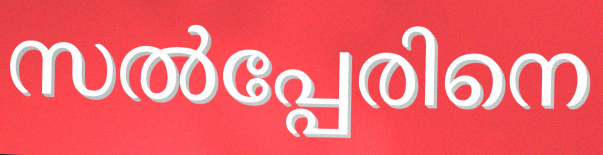
സൽപ്പേരിനെ